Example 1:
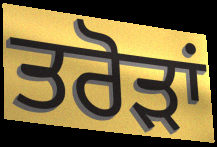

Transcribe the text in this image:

ਤਰੋੜਾਂ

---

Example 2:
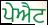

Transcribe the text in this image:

ਪੇਐਟ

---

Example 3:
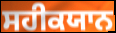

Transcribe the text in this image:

ਸਹੀਕਯਾਨ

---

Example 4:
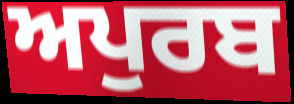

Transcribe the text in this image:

ਅਪੁਰਬ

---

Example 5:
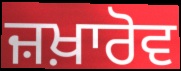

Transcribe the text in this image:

ਜ਼ਖ਼ਾਰੋਵ